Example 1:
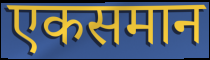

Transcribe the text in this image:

एकसमान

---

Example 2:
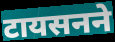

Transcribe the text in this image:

टायसनने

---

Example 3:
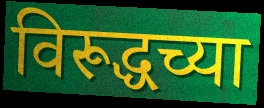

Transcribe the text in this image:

विरूद्धच्या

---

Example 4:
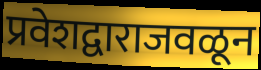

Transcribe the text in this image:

प्रवेशद्वाराजवळून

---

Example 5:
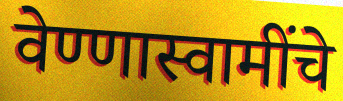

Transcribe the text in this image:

वेण्णास्वामींचे